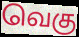
வெகு